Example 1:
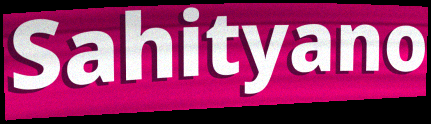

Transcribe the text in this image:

Sahityano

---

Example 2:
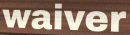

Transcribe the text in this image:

waiver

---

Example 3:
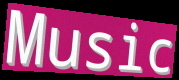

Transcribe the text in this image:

Music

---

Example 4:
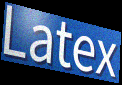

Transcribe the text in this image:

Latex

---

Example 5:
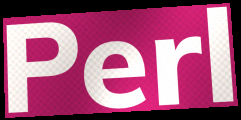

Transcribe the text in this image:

Perl